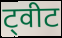
ट्‍वीट